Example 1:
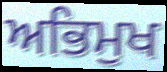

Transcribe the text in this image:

ਅਭਿਮੁਖ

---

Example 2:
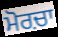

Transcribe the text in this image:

ਮੋਰ਼ਚਾ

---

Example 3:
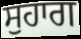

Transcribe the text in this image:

ਸੁਹਾਗ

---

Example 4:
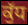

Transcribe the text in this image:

ਕੁੱਧ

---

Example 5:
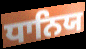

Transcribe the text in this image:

ਧਾਨਿਯ